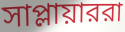
সাপ্লায়াররা